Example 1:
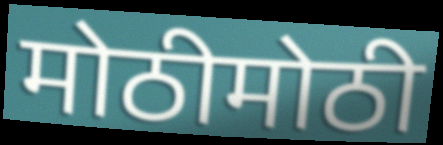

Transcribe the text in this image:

मोठीमोठी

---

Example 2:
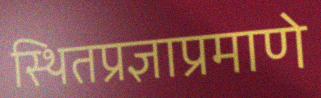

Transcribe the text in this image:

स्थितप्रज्ञाप्रमाणे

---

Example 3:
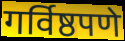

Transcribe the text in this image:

गर्विष्ठपणे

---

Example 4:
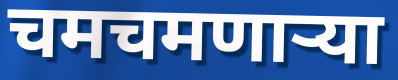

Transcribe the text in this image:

चमचमणार्‍या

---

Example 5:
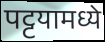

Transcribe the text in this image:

पट्टयामध्ये